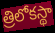
త్రిలోకస్థా